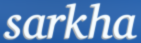
sarkha